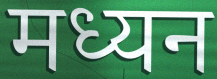
मध्यन